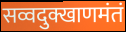
सव्वदुक्खाणमंतं